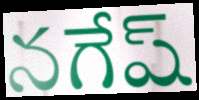
నగేష్